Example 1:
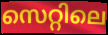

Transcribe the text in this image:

സെറ്റിലെ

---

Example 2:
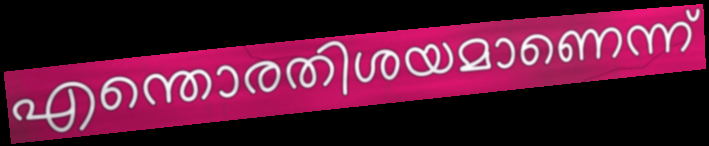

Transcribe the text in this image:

എന്തൊരതിശയമാണെന്ന്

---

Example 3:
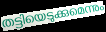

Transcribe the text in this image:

തട്ടിയെടുക്കുമെന്നും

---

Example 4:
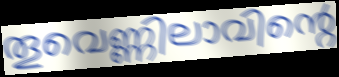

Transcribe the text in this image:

തൂവെണ്ണിലാവിന്റെ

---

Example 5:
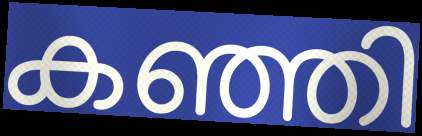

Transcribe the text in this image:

കഞ്ഞി